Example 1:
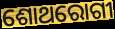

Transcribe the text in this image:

ଶୋଥରୋଗୀ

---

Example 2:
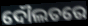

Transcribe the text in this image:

ଦୌଲତରେ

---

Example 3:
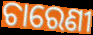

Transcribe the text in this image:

ଚାରେଣୀ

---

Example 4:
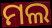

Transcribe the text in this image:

ମଲ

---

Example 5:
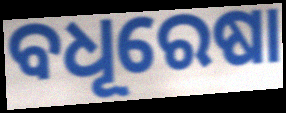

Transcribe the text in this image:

ବଧୂରେଷା